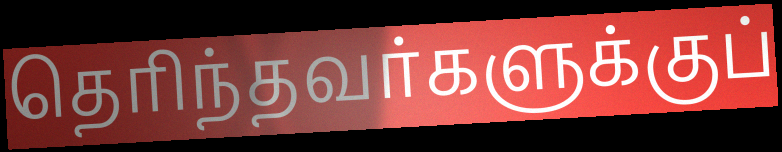
தெரிந்தவர்களுக்குப்